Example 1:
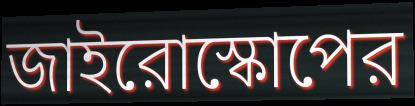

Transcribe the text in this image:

জাইরোস্কোপের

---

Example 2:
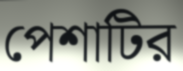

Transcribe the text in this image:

পেশাটির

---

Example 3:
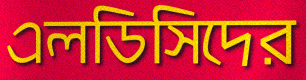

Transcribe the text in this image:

এলডিসিদের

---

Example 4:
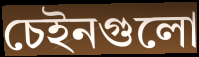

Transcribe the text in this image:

চেইনগুলো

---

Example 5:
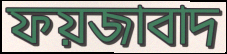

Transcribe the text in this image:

ফয়জাবাদ